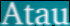
Atau